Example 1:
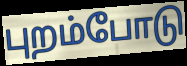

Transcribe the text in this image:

புறம்போடு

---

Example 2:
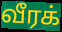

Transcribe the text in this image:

வீரக்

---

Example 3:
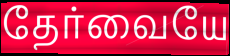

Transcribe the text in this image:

தேர்வையே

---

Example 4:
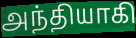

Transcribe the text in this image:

அந்தியாகி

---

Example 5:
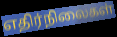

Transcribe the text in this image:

எதிர்நிலைகள்